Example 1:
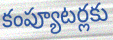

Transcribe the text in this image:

కంప్యూటర్లకు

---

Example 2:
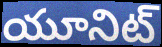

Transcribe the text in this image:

యూనిట్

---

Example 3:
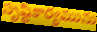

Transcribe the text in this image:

సృష్టికార్యమును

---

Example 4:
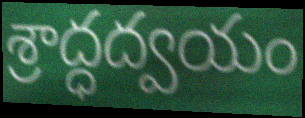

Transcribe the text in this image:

శ్రాద్ధద్వయం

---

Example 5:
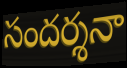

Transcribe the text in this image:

సందర్శనా